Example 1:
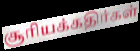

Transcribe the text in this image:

சூரியக்கதிர்கள்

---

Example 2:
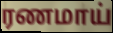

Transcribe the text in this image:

ரணமாய்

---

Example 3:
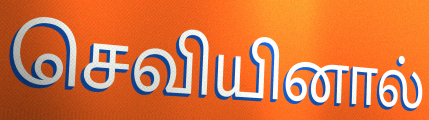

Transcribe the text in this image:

செவியினால்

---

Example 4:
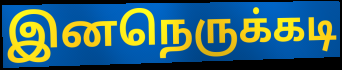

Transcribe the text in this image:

இனநெருக்கடி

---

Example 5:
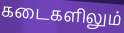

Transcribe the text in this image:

கடைகளிலும்